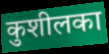
कुशीलका